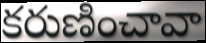
కరుణించావా